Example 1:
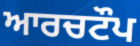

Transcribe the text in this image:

ਆਰਚਟੌਪ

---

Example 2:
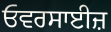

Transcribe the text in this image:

ਓਵਰਸਾਈਜ਼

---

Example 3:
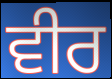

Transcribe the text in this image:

ਵੀਰ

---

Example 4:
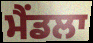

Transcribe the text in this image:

ਮੈਂਡਲਾ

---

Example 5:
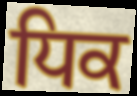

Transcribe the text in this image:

ਧਿਕ